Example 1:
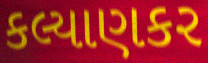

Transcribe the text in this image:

કલ્યાણકર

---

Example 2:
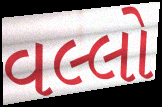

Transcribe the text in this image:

વલ્લો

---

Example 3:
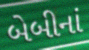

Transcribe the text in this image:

બેબીનાં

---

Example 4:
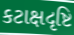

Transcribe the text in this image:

કટાક્ષદૃષ્ટિ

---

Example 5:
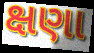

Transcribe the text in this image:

ક્ષણા